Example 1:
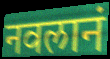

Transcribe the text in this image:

नवलानं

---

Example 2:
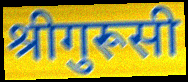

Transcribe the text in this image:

श्रीगुरूसी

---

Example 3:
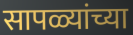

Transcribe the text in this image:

सापळ्यांच्या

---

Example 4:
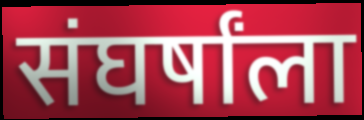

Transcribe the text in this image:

संघर्षांला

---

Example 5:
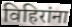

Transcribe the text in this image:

विहिरांना